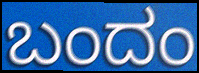
ಬಂದಂ